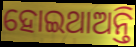
ହୋଇଥାଅନ୍ତି